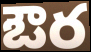
ఔర